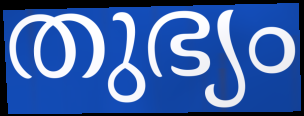
തുഭ്യം